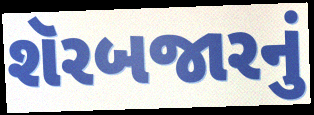
શૅરબજારનું